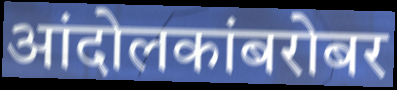
आंदोलकांबरोबर